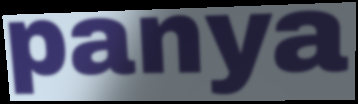
panya